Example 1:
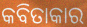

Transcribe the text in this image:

କବିତାକାର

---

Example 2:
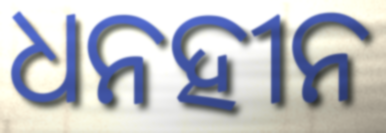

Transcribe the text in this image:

ଧନହୀନ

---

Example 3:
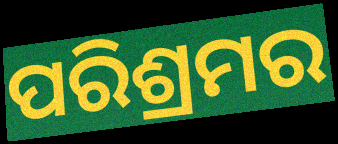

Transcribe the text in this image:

ପରିଶ୍ରମର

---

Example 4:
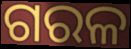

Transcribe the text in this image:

ଗରଳ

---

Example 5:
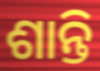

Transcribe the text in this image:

ଶାନ୍ତି